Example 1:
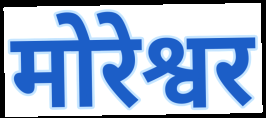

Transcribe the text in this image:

मोरेश्वर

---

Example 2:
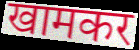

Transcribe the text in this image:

खामकर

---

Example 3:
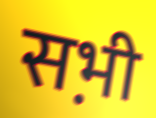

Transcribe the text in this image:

सभ़ी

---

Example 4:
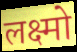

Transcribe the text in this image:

लक्ष्मो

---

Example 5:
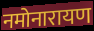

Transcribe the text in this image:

नमोनारायण